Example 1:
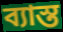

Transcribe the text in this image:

ব্যাস্ত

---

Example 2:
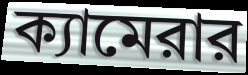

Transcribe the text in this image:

ক্যামেরার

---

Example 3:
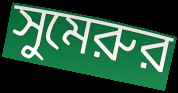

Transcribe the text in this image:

সুমেরুর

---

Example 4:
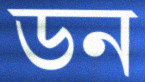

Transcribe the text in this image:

ডন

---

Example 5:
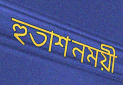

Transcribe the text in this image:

হুতাশনময়ী